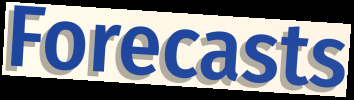
Forecasts